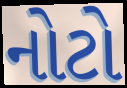
નોટો